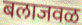
बलाजवळ